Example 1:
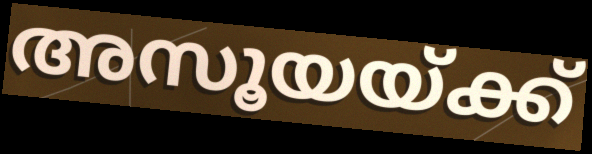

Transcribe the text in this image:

അസൂയയ്ക്ക്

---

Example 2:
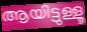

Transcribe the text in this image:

ആയിട്ടുള്ളൂ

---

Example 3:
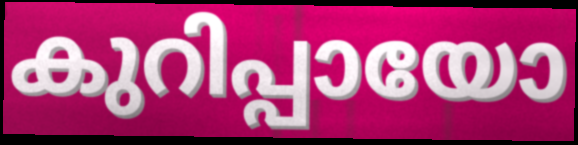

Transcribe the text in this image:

കുറിപ്പായോ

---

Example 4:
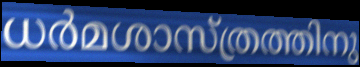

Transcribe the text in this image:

ധർമശാസ്ത്രത്തിനു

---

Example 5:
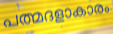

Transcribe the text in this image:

പത്മദളാകാരം